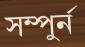
সম্পুৰ্ন